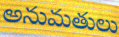
అనుమతులు